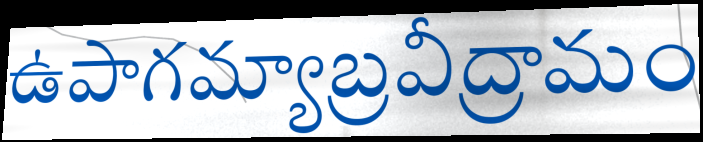
ఉపాగమ్యాబ్రవీద్రామం